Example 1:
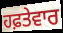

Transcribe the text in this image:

ਹਫ਼ਤੇਵਾਰ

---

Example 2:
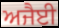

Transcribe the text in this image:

ਅਜੈਈ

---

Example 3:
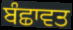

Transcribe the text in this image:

ਬੰਛਾਵਤ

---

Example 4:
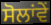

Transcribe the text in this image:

ਸੋਲਾਂਵੇਂ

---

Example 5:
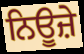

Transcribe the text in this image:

ਨਿਊਜ਼ੇ